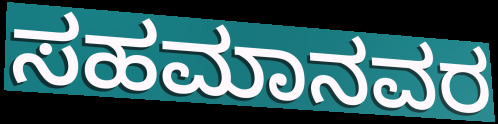
ಸಹಮಾನವರ